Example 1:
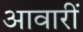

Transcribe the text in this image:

आवारीं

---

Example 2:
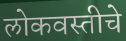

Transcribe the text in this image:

लोकवस्तीचे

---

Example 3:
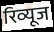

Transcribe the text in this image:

रिव्यूज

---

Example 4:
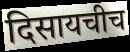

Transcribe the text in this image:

दिसायचीच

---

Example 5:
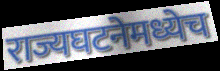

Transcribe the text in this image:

राज्यघटनेमध्येच